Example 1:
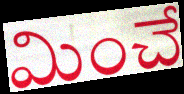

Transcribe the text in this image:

మించే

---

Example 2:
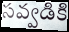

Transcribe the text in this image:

సవ్వడికి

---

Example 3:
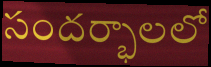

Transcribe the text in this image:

సందర్భాలలో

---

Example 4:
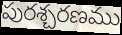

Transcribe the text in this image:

పురశ్చరణము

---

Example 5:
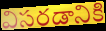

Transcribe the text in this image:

విసరడానికి